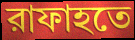
রাফাহতে